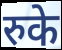
रुके